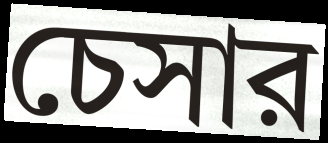
চেসার